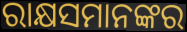
ରାକ୍ଷସମାନଙ୍କର